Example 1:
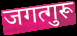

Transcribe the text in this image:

जगत्गुरू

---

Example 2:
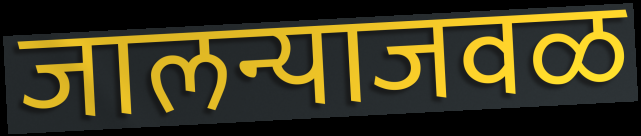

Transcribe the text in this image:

जालन्याजवळ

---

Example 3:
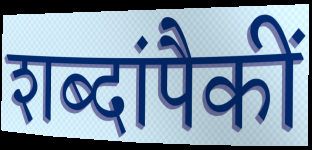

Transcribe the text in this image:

शब्दांपैकीं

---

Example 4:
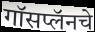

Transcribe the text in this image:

गॉसप्लॅनचे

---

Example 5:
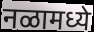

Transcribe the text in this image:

नळामध्ये